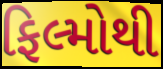
ફિલ્મોથી